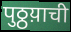
पुठ्ठय़ाची